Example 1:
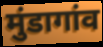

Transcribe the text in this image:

मुंडागांव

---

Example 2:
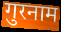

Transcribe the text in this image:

गुरनाम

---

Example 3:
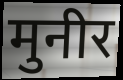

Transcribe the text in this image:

मुनीर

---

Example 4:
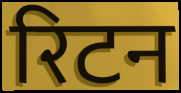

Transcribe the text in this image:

रिटन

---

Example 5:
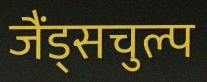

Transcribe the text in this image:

जैंड्सचुल्प